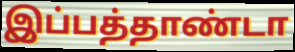
இப்பத்தாண்டா